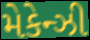
મેકેન્ઝી